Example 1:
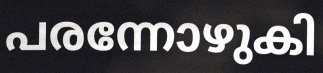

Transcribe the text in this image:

പരന്നോഴുകി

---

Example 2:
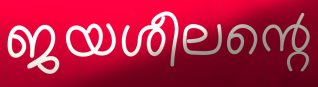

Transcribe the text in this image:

ജയശീലന്റെ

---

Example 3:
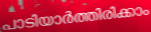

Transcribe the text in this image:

പാടിയാർത്തിരിക്കാം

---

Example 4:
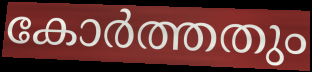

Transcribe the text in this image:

കോർത്തതും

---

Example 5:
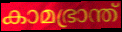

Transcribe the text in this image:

കാമഭ്രാന്ത്